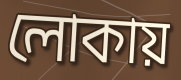
লোকায়